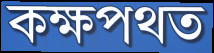
কক্ষপথত